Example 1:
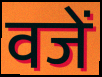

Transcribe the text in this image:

वजें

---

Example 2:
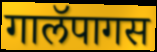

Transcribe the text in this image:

गालॅपागस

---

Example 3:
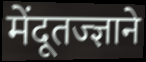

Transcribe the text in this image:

मेंदूतज्ज्ञाने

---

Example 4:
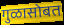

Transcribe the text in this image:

गुळासोबत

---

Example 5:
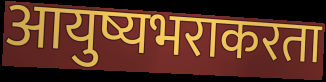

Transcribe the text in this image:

आयुष्यभराकरता